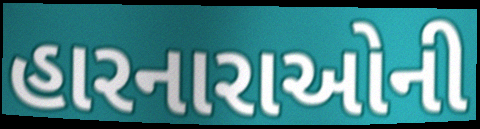
હારનારાઓની